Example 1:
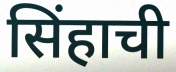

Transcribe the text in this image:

सिंहाची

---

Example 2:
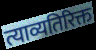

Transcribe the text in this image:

त्याव्यतिरिक्त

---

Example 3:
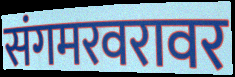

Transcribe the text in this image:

संगमरवरावर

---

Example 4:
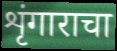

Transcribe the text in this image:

शृंगाराचा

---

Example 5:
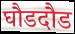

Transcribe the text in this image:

घौडदौड